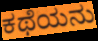
ಕಥೆಯನು